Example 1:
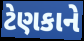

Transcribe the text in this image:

ટેણકાને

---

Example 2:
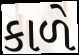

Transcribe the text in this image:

કાળે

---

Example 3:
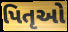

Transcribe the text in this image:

પિતૃઓ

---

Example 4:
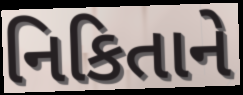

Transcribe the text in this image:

નિકિતાને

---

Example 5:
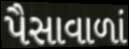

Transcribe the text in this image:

પૈસાવાળાં